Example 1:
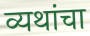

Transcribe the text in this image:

व्यथांचा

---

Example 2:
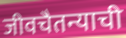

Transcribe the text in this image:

जीवचैतन्याची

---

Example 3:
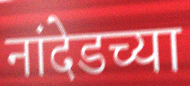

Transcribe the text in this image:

नांदेडच्या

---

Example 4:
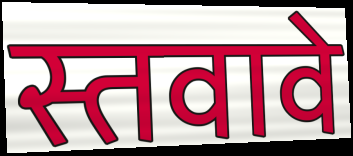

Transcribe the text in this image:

स्तवावे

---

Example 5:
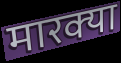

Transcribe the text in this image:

मारक्या